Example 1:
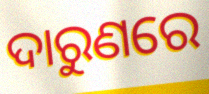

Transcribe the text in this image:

ଦାରୁଣରେ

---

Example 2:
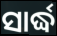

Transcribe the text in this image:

ସାର୍ଦ୍ଧ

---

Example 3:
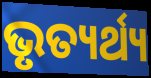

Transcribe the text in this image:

ଭୃତ୍ୟର୍ଥ୍ୟ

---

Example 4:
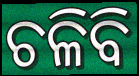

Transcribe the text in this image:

ଚଳିବି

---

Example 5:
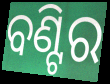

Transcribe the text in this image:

ବଣ୍ଟିର